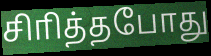
சிரித்தபோது